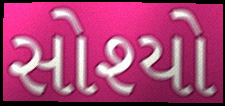
સોશ્યો